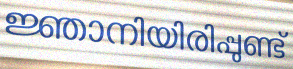
ജ്ഞാനിയിരിപ്പുണ്ട്